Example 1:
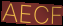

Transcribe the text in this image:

AECF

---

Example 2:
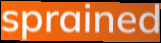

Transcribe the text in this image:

sprained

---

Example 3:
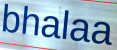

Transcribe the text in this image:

bhalaa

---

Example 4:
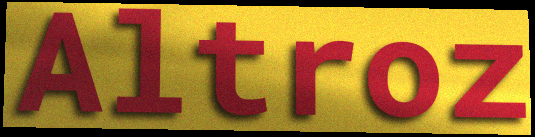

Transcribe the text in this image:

Altroz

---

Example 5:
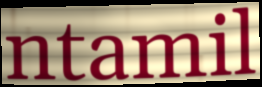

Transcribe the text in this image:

ntamil